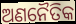
ଅଣନୈତିକ